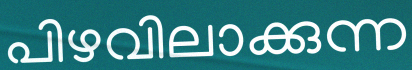
പിഴവിലാക്കുന്ന